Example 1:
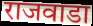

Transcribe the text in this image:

राजवाडा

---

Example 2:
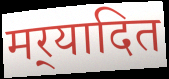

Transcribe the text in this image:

मर्यादित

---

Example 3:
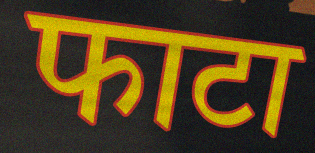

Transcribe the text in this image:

फाटा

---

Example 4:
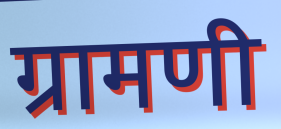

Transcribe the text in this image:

ग्रामणी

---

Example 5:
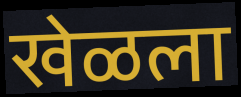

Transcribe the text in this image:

खेळला